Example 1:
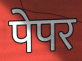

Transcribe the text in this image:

पेपर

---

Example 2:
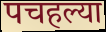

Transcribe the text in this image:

पचहल्या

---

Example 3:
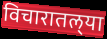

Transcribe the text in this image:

विचारातल्या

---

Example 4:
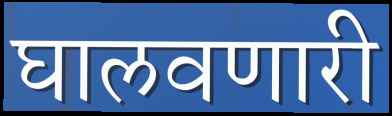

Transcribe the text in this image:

घालवणारी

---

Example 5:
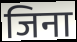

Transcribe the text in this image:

जिना